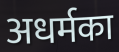
अधर्मका